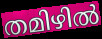
തമിഴിൽ